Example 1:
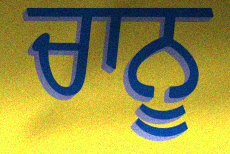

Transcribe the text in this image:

ਚਾਨੂ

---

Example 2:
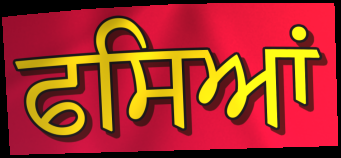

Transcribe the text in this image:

ਫਸਿਆਂ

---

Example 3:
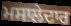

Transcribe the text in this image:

ਮਸਾਲੇਦਾਰ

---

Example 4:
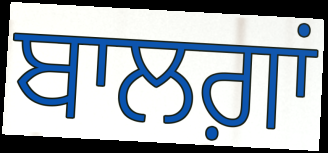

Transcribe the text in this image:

ਬਾਲਗ਼ਾਂ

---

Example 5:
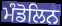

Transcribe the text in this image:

ਮੰਡੋਲਿਨ